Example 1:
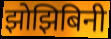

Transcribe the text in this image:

झोझिबिनी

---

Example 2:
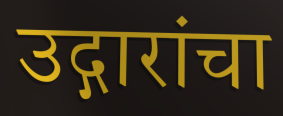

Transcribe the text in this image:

उद्गारांचा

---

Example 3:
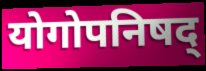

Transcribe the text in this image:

योगोपनिषद्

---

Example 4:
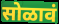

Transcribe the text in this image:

सोळावं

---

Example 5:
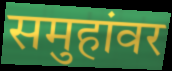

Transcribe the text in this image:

समुहांवर